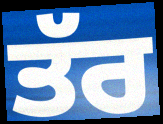
ਤੱਰ